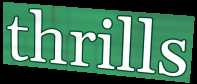
thrills